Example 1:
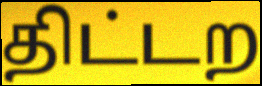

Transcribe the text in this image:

திட்டற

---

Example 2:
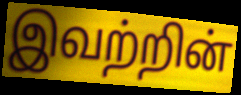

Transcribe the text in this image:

இவற்றின்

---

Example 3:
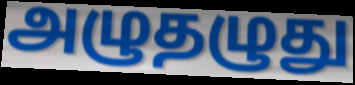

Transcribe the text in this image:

அழுதழுது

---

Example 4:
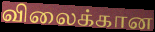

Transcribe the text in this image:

விலைக்கான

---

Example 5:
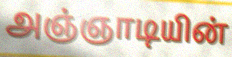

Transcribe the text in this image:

அஞ்ஞாடியின்